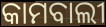
କାମବାଲୀ